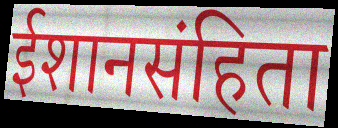
ईशानसंहिता